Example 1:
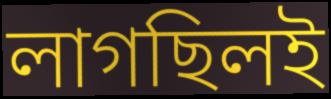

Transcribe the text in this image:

লাগছিলই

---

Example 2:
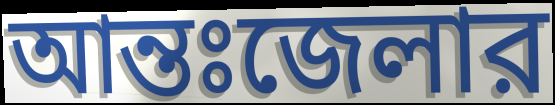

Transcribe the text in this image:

আন্তঃজেলার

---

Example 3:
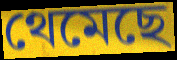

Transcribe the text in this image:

থেমেছে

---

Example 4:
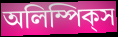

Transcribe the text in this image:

অলিম্পিক্‌স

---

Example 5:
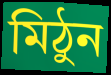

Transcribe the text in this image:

মিঠুন